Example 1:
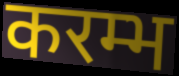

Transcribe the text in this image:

करम्भ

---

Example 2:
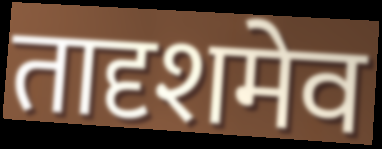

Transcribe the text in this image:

तादृशमेव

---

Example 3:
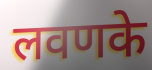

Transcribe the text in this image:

लवणके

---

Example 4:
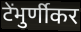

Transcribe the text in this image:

टेंभुर्णीकर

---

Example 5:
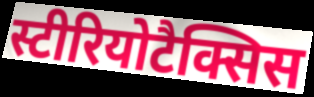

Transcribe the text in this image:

स्टीरियोटैक्सिस